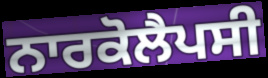
ਨਾਰਕੋਲੈਪਸੀ